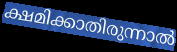
ക്ഷമിക്കാതിരുന്നാൽ